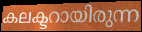
കലക്ടറായിരുന്ന